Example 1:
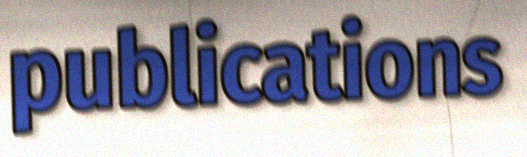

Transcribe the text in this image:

publications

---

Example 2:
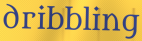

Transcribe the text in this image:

dribbling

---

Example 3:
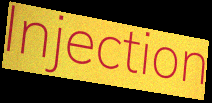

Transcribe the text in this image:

Injection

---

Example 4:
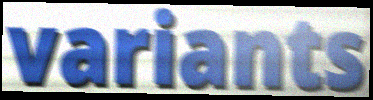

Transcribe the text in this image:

variants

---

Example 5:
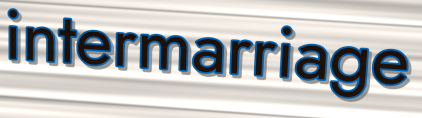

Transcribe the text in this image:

intermarriage